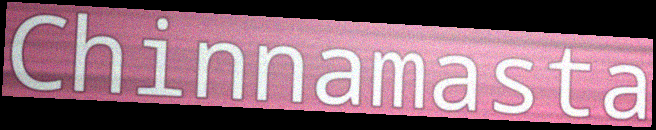
Chinnamasta